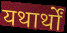
यथार्थों